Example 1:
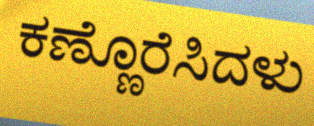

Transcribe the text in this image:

ಕಣ್ಣೊರೆಸಿದಳು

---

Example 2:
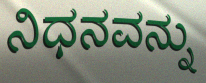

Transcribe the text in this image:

ನಿಧನವನ್ನು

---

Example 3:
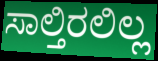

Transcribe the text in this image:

ಸಾಲ್ತಿರಲಿಲ್ಲ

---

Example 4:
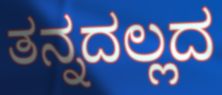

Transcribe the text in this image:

ತನ್ನದಲ್ಲದ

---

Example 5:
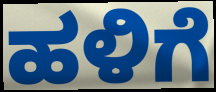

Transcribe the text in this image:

ಹಳಿಗೆ